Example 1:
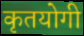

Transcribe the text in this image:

कृतयोगी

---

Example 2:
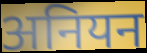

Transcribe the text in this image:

अनियन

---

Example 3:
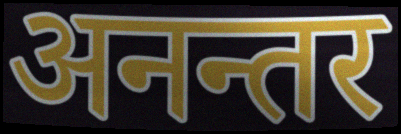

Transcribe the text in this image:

अनन्तर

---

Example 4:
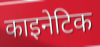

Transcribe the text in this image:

काइनेटिक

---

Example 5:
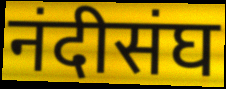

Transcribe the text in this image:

नंदीसंघ